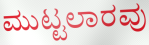
ಮುಟ್ಟಲಾರವು